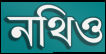
নথিও